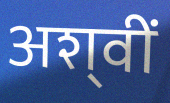
अश्वीं